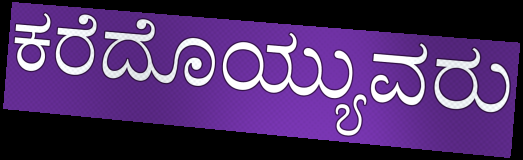
ಕರೆದೊಯ್ಯುವರು